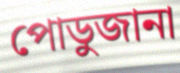
পোডুজানা